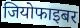
जियोफाइबर